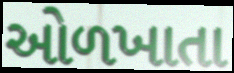
ઓળખાતા